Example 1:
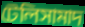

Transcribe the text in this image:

টেলিসামাদ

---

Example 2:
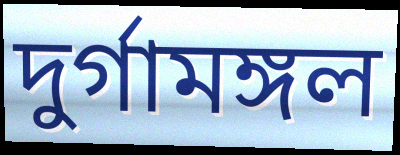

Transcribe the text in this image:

দুর্গামঙ্গল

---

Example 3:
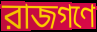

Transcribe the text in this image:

রাজগণে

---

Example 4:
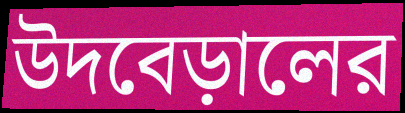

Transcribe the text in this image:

উদবেড়ালের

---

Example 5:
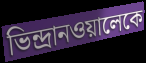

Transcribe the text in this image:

ভিন্দ্রানওয়ালেকে